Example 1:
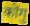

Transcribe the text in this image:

कोंगु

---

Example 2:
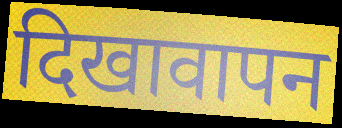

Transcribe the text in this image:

दिखावापन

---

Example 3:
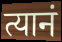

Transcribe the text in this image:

त्यानं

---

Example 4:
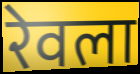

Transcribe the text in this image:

रेवला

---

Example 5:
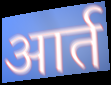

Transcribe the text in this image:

आर्त